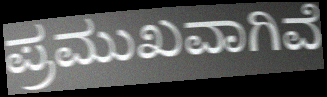
ಪ್ರಮುಖವಾಗಿವೆ